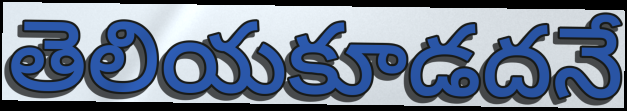
తెలియకూడదనే